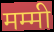
मम्मी